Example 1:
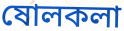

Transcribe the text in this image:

ষোলকলা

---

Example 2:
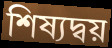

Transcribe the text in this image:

শিষ্যদ্বয়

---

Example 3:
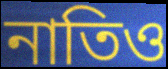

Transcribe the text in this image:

নাতিও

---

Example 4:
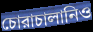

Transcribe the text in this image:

চোরাচালানিও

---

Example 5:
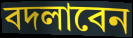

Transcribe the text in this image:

বদলাবেন